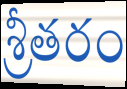
శ్రీతరం